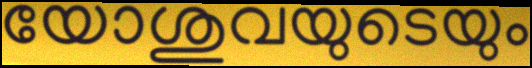
യോശുവയുടെയും